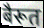
बैरूत